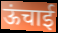
ऊंचाई